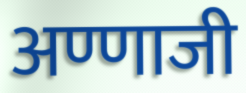
अण्णाजी